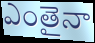
ఎంతైనా